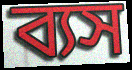
ব্যস